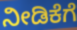
ನೀಡಿಕೆಗೆ